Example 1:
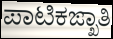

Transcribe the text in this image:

ಪಾಟಿಕಙ್ಖಾತಿ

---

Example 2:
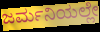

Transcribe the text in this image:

ಜರ್ಮನಿಯಲ್ಲೇ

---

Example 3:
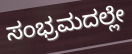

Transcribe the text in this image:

ಸಂಭ್ರಮದಲ್ಲೇ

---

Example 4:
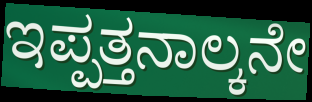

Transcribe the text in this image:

ಇಪ್ಪತ್ತನಾಲ್ಕನೇ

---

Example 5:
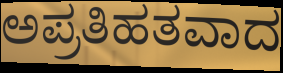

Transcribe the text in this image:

ಅಪ್ರತಿಹತವಾದ